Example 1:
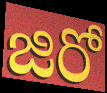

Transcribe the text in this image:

జిరో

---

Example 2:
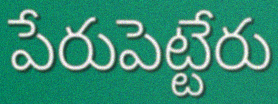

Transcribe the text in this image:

పేరుపెట్టేరు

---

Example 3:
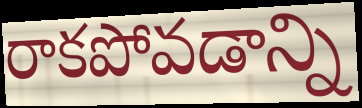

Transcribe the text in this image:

రాకపోవడాన్ని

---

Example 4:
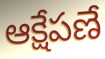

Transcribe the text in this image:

ఆక్షేపణే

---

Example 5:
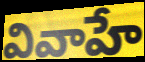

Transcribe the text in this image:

వివాహే